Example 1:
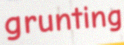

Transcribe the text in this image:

grunting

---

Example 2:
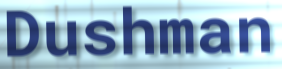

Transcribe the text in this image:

Dushman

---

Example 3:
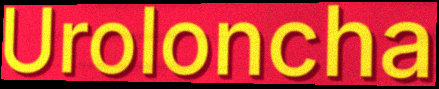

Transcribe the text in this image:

Uroloncha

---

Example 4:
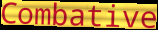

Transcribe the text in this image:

Combative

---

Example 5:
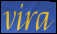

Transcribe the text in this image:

vira